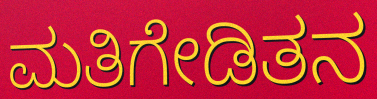
ಮತಿಗೇಡಿತನ